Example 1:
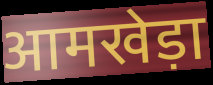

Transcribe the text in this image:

आमखेड़ा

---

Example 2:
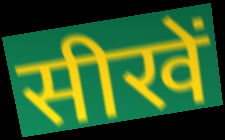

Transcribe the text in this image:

सीखें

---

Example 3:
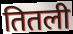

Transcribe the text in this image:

तितली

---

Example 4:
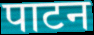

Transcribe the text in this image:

पाटन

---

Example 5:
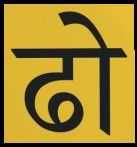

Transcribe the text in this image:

ढो